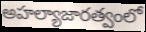
అహల్యాజారత్వంలో